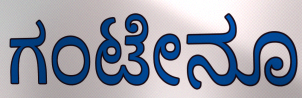
ಗಂಟೇನೂ